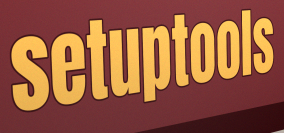
setuptools